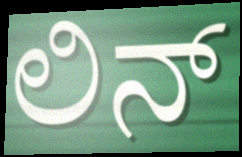
ಲಿನ್